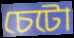
চেটো